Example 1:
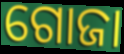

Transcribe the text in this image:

ଗୋଜା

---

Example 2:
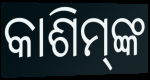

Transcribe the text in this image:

କାଶିମ୍‍ଙ୍କ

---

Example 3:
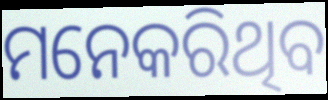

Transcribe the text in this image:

ମନେକରିଥିବ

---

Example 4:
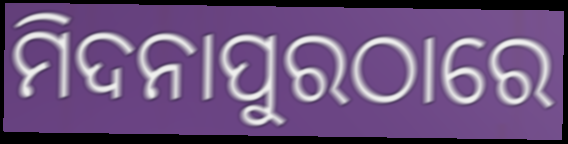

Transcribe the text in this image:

ମିଦନାପୁରଠାରେ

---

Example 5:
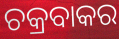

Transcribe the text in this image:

ଚକ୍ରବାକର